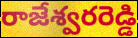
రాజేశ్వరరెడ్డి